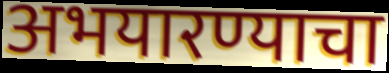
अभयारण्याचा